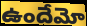
ఉందేమో